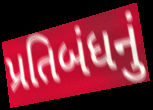
પ્રતિબંધનું